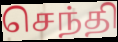
செந்தி